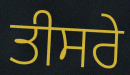
ਤੀਸਰੇ